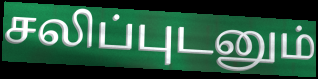
சலிப்புடனும்